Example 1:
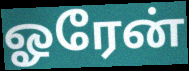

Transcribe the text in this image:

ஓரேன்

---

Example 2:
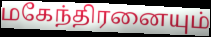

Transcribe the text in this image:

மகேந்திரனையும்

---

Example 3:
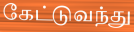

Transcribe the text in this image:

கேட்டுவந்து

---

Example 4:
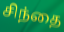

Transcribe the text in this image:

சிந்தை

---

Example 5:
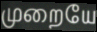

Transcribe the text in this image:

முறையே